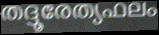
തദ്ദൂരേത്യഫലം